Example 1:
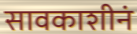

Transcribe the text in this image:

सावकाशीनं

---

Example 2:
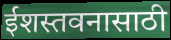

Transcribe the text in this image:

ईशस्तवनासाठी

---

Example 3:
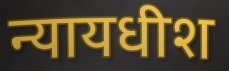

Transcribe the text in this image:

न्यायधीश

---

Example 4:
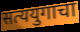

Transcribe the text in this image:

सत्ययुगाचा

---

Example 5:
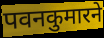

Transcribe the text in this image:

पवनकुमारने